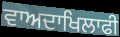
ਵਾਅਦਾਖਿਲਾਫੀ